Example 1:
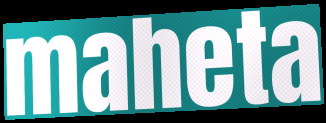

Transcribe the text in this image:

maheta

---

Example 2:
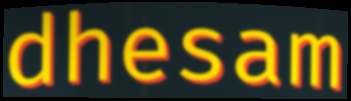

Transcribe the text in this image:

dhesam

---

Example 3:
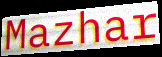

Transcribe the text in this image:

Mazhar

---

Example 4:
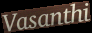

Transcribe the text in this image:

Vasanthi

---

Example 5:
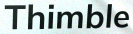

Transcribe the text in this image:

Thimble